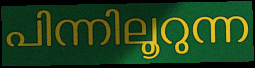
പിന്നിലൂറുന്ന